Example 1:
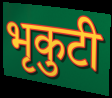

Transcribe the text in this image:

भृकुटी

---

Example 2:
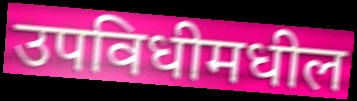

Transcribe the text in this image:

उपविधीमधील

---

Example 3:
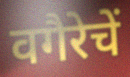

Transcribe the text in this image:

वगैरेचें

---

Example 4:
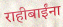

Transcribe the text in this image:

राहीबाईंना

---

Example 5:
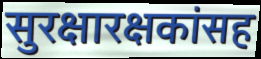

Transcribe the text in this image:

सुरक्षारक्षकांसह